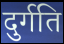
दुर्गति